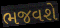
ભજવશે